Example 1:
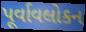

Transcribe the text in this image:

પૂર્વાવલોકન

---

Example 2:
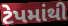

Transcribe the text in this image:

ટેપમાંથી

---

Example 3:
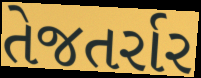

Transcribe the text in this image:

તેજતર્રાર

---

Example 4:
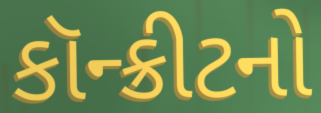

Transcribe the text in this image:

કૉન્ક્રીટનો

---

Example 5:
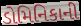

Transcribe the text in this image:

ડોમિનિકાની